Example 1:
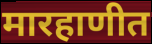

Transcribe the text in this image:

मारहाणीत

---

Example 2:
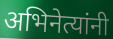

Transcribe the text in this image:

अभिनेत्यांनी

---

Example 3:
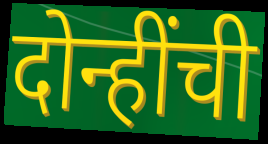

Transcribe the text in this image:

दोन्हींची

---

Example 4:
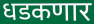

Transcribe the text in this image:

धडकणार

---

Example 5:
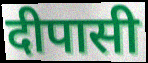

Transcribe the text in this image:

दीपासी